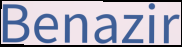
Benazir